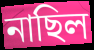
নাছিল